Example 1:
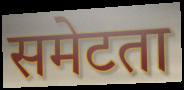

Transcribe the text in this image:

समेटता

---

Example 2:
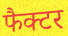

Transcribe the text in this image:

फैक्टर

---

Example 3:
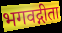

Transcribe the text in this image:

भगवद्गीता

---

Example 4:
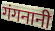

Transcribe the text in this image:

गंगनानी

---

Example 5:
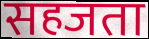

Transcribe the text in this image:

सहजता